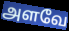
அளவே